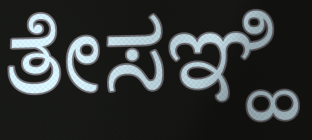
ತೇಸಞ್ಹಿ